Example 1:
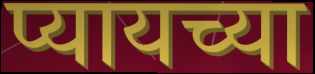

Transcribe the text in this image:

प्यायच्या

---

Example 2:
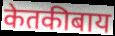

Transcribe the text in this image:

केतकीबाय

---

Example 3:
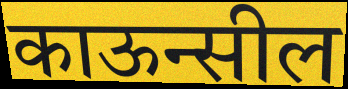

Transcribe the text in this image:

काऊन्सील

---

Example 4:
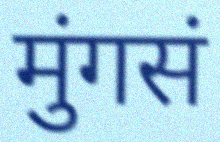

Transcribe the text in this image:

मुंगसं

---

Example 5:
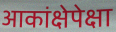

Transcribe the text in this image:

आकांक्षेपेक्षा